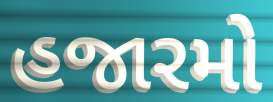
હજારમો